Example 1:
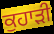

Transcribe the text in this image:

ਕੁਹਾੜੀ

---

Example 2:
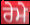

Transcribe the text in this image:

ਰੇਮੇ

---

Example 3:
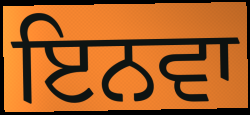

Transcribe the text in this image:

ਇਨਵਾ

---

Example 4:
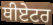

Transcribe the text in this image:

ਥੀਏਟਰ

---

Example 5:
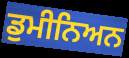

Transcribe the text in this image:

ਡੁਮੀਨਿਅਨ